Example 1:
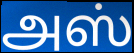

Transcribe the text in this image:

அஸ்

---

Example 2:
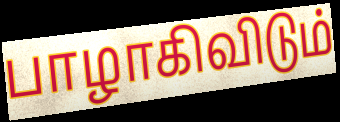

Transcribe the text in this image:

பாழாகிவிடும்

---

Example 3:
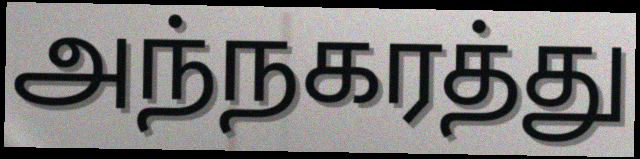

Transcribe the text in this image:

அந்நகரத்து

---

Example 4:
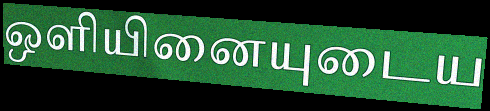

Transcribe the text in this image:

ஒளியினையுடைய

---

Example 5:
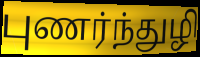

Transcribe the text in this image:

புணர்ந்துழி